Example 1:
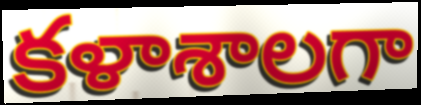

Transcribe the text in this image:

కళాశాలగా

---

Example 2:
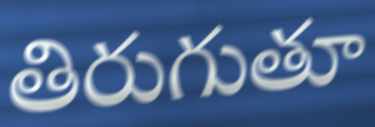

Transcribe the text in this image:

తిరుగుతూ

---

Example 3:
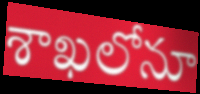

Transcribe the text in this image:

శాఖలోనూ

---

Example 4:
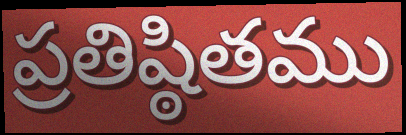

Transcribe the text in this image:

ప్రతిష్ఠితము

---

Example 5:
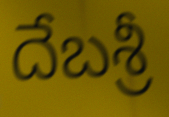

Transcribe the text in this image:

దేబశ్రీ